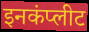
इनकंप्लीट